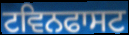
ਟਵਿਨਫਾਸਟ